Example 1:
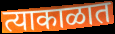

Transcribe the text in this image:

त्याकाळात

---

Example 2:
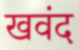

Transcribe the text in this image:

खवंद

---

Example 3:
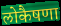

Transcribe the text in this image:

लोकैषणा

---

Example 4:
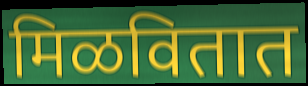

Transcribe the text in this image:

मिळवितात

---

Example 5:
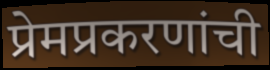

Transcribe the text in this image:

प्रेमप्रकरणांची